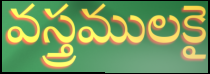
వస్త్రములకై